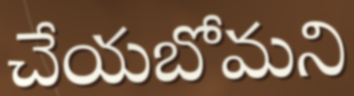
చేయబోమని